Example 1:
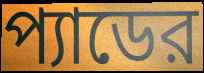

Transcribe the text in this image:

প্যাডের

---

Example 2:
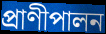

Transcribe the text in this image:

প্রাণীপালন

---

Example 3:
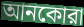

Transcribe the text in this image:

আনকোরা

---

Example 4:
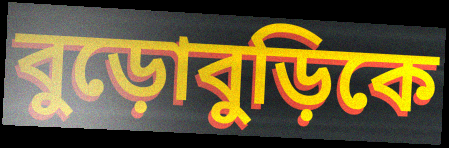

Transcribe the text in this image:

বুড়োবুড়িকে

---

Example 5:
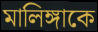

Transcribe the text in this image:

মালিঙ্গাকে